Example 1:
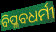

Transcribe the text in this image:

ବିପ୍ଳବଧର୍ମୀ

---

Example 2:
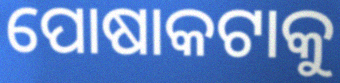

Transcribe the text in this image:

ପୋଷାକଟାକୁ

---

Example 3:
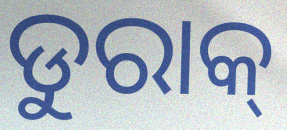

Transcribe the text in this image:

ଡୁରାକ୍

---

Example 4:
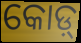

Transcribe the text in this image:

କୋଡ଼୍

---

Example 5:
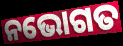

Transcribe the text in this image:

ନଭୋଗତ